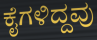
ಕೈಗಳಿದ್ದವು